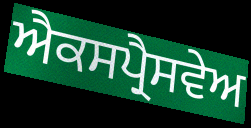
ਐਕਸਪ੍ਰੈਸਵੇਅ